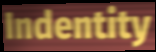
Indentity